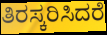
ತಿರಸ್ಕರಿಸಿದರೆ